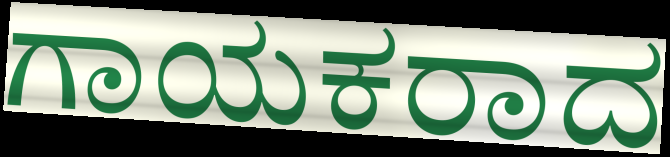
ಗಾಯಕರಾದ